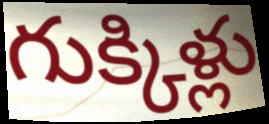
గుక్కిళ్లు